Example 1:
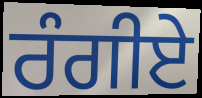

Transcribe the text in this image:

ਰੰਗੀਏ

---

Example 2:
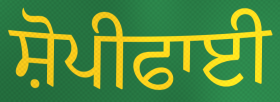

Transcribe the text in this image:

ਸ਼ੋਪੀਫਾਈ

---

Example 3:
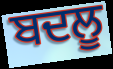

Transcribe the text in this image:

ਬਦਲੂ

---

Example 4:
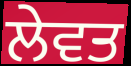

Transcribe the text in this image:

ਲੇਵਤ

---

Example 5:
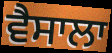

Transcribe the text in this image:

ਵੈਸਾਲਾ